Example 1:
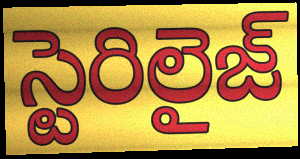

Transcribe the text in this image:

స్టెరిలైజ్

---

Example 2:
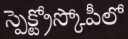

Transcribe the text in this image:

స్పెక్ట్రోస్కోపీలో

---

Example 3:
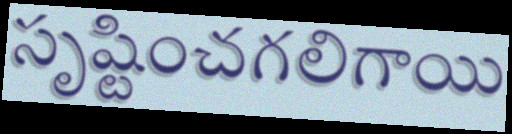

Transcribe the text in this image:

సృష్టించగలిగాయి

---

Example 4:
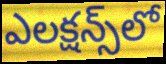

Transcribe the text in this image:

ఎలక్షన్స్‌లో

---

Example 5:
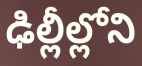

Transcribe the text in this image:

ఢిల్లీల్లోని